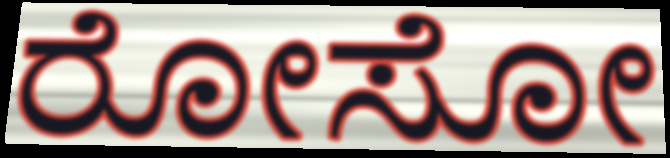
ರೋಸೋ